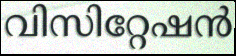
വിസിറ്റേഷൻ